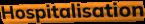
Hospitalisation